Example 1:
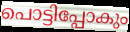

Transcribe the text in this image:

പൊട്ടിപ്പോകും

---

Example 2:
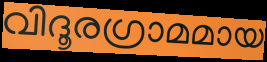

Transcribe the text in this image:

വിദൂരഗ്രാമമായ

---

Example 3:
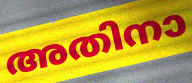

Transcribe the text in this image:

അതിനാ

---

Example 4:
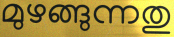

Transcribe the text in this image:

മുഴങ്ങുന്നതു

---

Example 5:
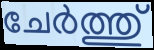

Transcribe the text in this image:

ചേർത്തു്